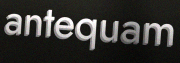
antequam